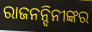
ରାଜନନ୍ଦିନୀଙ୍କର